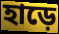
হাড়ে